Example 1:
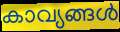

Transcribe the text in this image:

കാവ്യങ്ങൾ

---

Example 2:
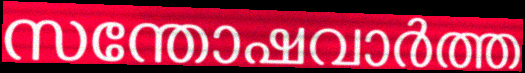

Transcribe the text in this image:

സന്തോഷവാർത്ത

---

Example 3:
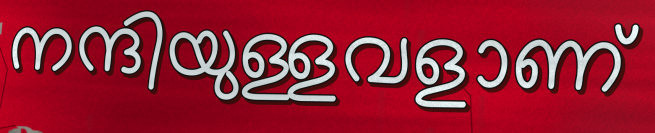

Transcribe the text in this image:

നന്ദിയുള്ളവളാണ്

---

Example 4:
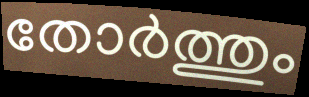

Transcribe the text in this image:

തോർത്തും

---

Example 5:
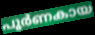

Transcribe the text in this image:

പൂർണകായ